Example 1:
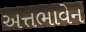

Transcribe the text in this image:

અત્તભાવેન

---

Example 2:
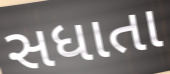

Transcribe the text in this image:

સધાતા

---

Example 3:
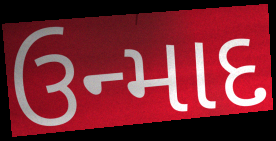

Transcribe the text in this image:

ઉન્માદ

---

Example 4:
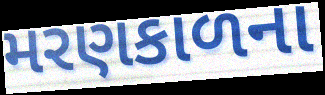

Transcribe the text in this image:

મરણકાળના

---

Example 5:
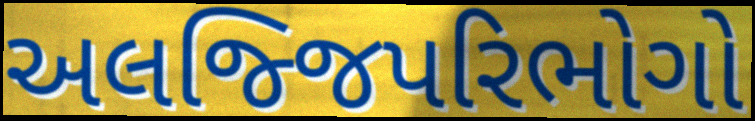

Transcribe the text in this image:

અલજ્જિપરિભોગો